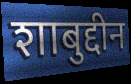
शाबुद्दीन